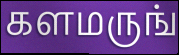
களமருங்